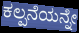
ಕಲ್ಪನೆಯನ್ನೇ